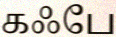
கஃபே